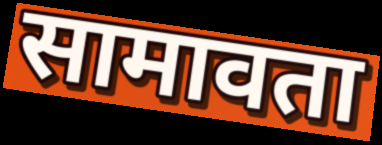
सामावता